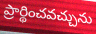
ప్రార్థించవచ్చును